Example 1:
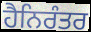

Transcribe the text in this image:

ਹੈਨਿਰੰਤਰ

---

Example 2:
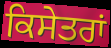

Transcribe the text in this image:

ਕਿਸੇਤਰਾਂ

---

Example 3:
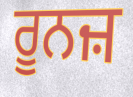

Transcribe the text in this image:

ਰੂਨਜ਼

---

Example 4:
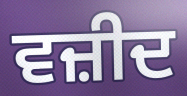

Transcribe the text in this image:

ਵਜ਼ੀਦ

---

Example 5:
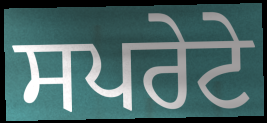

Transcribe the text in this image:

ਸਪਰੇਟੇ